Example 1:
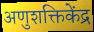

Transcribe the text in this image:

अणुशक्तिकेंद्र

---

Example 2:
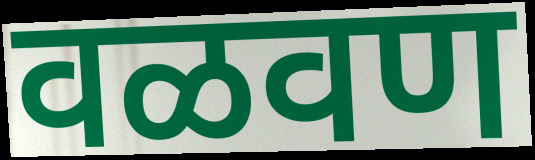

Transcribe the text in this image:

वळवण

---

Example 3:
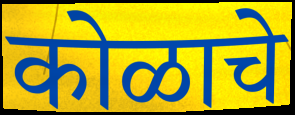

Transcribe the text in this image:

कोळाचे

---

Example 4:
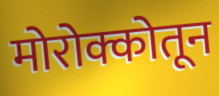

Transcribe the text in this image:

मोरोक्कोतून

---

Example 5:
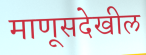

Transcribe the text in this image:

माणूसदेखील